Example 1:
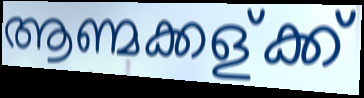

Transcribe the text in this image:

ആണ്മക്കള്ക്ക്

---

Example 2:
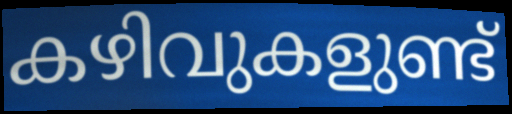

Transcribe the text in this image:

കഴിവുകളുണ്ട്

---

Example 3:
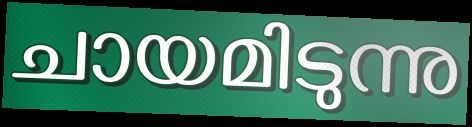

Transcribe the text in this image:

ചായമിടുന്നു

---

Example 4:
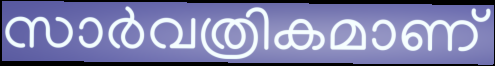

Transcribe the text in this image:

സാർവത്രികമാണ്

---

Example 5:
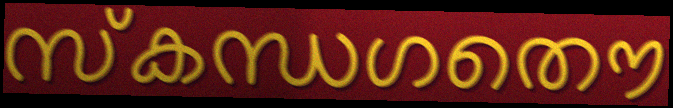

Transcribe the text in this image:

സ്കന്ധഗതൌ